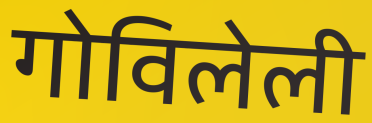
गोविलेली